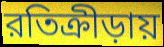
রতিক্রীড়ায়